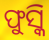
ଫୁସ୍କି